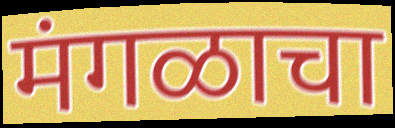
मंगळाचा